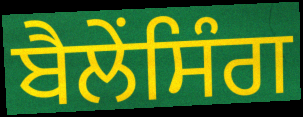
ਬੈਲੇਂਸਿੰਗ